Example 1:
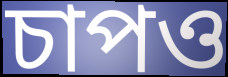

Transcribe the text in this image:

চাপও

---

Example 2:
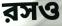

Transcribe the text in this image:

রসও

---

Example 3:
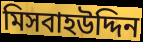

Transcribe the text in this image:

মিসবাহউদ্দিন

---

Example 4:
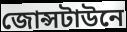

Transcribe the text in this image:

জোন্সটাউনে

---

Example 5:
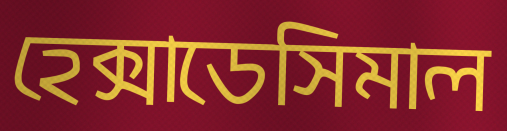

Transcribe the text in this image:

হেক্সাডেসিমাল